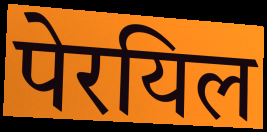
पेरयिल